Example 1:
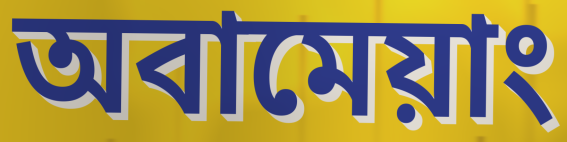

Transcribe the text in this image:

অবামেয়াং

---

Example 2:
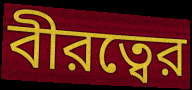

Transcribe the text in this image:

বীরত্বের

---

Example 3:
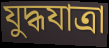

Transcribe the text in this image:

যুদ্ধযাত্রা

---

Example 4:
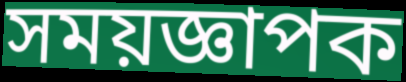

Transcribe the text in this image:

সময়জ্ঞাপক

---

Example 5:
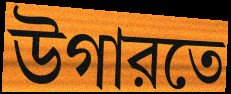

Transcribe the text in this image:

উগারতে